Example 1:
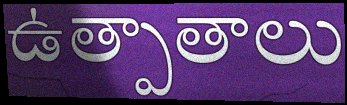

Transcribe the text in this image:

ఉత్పాతాలు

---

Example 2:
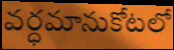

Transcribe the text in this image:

వర్ధమానుకోటలో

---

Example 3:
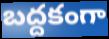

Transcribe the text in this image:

బద్దకంగా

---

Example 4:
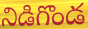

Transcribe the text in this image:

నిడిగొండ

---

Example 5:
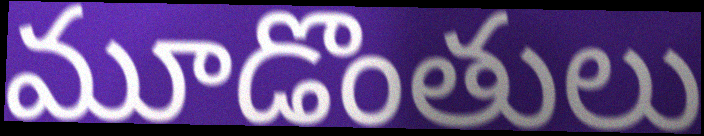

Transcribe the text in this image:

మూడొంతులు